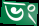
ভং